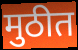
मुठीत